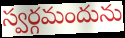
స్వర్గమందును